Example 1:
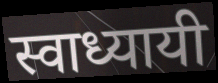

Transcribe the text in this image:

स्वाध्यायी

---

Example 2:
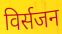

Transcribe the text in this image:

विर्सजन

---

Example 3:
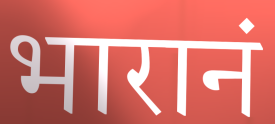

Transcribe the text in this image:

भारानं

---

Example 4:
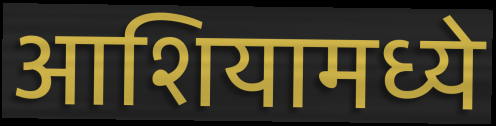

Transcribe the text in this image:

आशियामध्ये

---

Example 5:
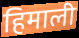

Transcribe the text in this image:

हिमाली